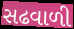
સઢવાળી